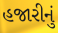
હજારીનું